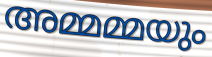
അമ്മമ്മയും